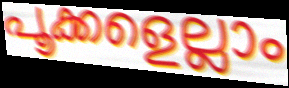
പൂക്കളെല്ലാം